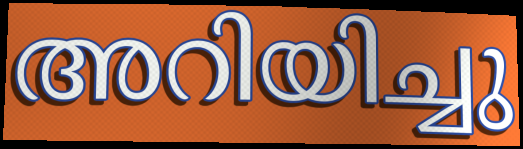
അറിയിച്ചു